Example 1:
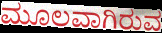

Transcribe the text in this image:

ಮೂಲವಾಗಿರುವ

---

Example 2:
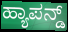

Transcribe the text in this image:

ಹ್ಯಾಪನ್ಡ್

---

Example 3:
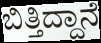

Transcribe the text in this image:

ಬಿತ್ತಿದ್ದಾನೆ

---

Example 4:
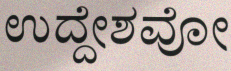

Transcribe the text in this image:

ಉದ್ದೇಶವೋ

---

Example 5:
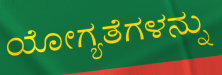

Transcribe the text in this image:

ಯೋಗ್ಯತೆಗಳನ್ನು